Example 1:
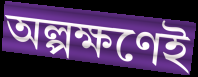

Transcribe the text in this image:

অল্পক্ষণেই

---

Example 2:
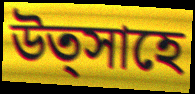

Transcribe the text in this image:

উত্সাহে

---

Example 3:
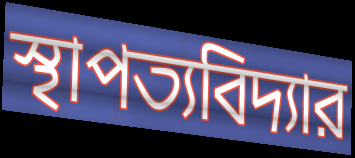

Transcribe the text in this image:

স্থাপত্যবিদ্যার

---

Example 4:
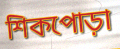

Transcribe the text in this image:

শিকপোড়া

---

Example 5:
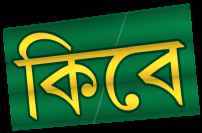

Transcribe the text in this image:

কিবে